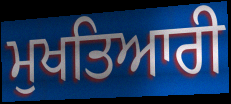
ਮੁਖਤਿਆਰੀ